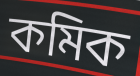
কমিক